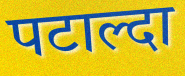
पटाल्दा